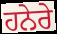
ਹਨੇਰੇ